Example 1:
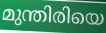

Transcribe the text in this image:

മുന്തിരിയെ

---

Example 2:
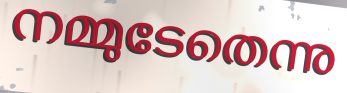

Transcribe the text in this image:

നമ്മുടേതെന്നു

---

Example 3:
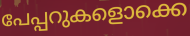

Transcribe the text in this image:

പേപ്പറുകളൊക്കെ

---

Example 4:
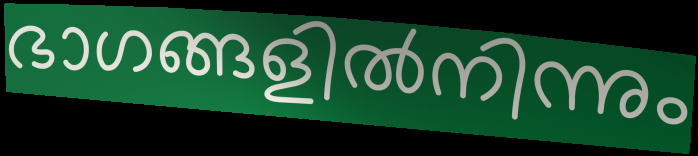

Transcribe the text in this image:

ഭാഗങ്ങളിൽനിന്നും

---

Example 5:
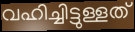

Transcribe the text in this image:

വഹിച്ചിട്ടുള്ളത്